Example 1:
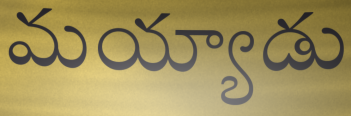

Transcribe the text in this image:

మయ్యాడు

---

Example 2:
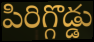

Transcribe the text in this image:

పిరిగ్గొడ్డు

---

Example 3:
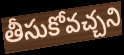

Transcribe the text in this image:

తీసుకోవచ్చని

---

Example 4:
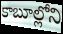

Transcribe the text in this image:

కాబూల్లోని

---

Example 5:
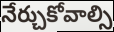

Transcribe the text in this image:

నేర్చుకోవాల్సి